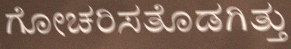
ಗೋಚರಿಸತೊಡಗಿತ್ತು